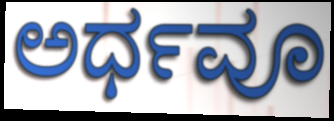
ಅರ್ಧವೂ